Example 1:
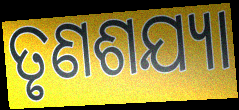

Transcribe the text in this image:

ତୃଣଶଯ୍ୟା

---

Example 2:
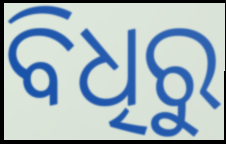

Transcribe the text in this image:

ବିଧିରୁ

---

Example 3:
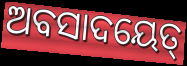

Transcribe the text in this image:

ଅବସାଦୟେତ୍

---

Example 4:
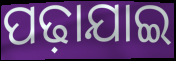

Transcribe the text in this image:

ପଢ଼ାଯାଇ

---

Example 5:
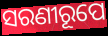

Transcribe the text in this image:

ସରଣୀରୂପେ